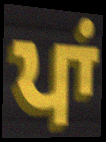
ਪਾਂ